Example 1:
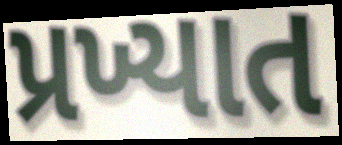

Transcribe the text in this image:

પ્રખ્યાત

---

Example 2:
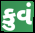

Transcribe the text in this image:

કુવં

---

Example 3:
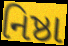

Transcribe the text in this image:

નિષ્ઠા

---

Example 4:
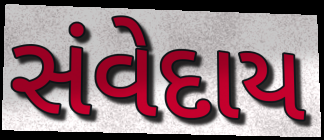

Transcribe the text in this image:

સંવેદાય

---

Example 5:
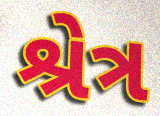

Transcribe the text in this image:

શ્રેત્ર